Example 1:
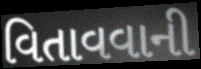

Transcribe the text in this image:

વિતાવવાની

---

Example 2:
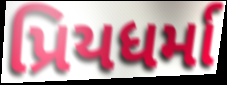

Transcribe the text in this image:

પ્રિયધર્મા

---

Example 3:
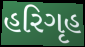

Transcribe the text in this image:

હરિગૃહ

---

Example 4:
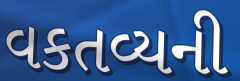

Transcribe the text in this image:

વકતવ્યની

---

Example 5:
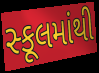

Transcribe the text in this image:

સ્કૂલમાંથી